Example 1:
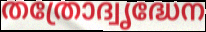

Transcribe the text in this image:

തത്രോദ്വൃദ്ധേന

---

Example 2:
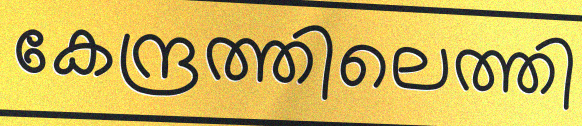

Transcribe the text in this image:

കേന്ദ്രത്തിലെത്തി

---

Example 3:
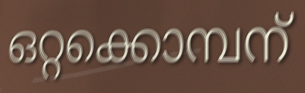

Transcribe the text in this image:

ഒറ്റക്കൊമ്പന്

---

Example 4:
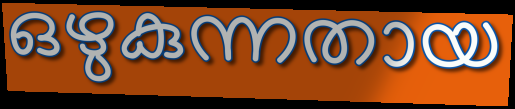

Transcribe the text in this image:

ഒഴുകുന്നതായ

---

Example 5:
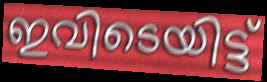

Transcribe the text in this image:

ഇവിടെയിട്ട്